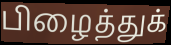
பிழைத்துக்